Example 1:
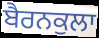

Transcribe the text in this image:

ਬੈਰਨਕੁਲਾ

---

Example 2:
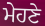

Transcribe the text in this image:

ਮੇਹਣੇ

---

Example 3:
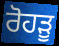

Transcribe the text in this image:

ਰੋਹੜੂ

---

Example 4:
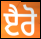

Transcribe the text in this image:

ੲੈਰੋ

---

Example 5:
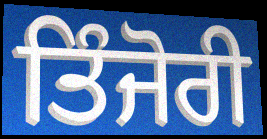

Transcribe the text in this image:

ਤਿੰਜੋਰੀ